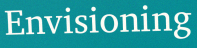
Envisioning